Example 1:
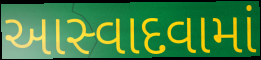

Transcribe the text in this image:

આસ્વાદવામાં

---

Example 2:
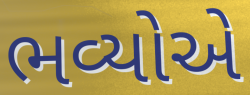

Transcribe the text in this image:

ભવ્યોએ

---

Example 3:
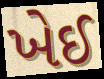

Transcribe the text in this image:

ખેઈ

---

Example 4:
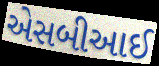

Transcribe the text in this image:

એસબીઆઈ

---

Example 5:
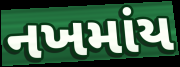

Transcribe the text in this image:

નખમાંય